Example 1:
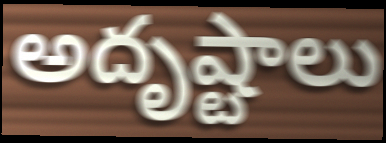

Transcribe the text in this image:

అదృష్టాలు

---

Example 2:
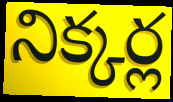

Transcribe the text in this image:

నిక్కర్ల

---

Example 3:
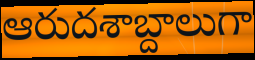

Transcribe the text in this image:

ఆరుదశాబ్దాలుగా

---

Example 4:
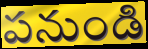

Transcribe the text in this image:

పనుండి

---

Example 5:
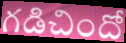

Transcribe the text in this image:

గడిచిందో